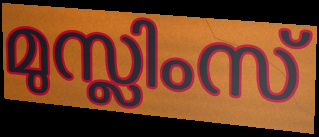
മുസ്ലിംസ്